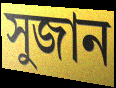
সুজান